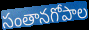
సంతానగోపాల